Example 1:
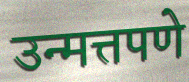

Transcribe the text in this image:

उन्मत्तपणे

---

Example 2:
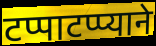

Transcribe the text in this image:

टप्पाटप्प्याने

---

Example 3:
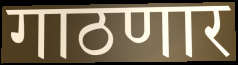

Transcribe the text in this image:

गाठणार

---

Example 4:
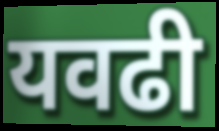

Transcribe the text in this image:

यवढी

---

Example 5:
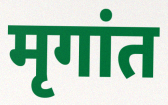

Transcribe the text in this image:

मृगांत